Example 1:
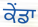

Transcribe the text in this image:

ਕੇਂਡਾ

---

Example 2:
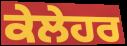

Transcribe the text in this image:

ਕੇਲੇਹਰ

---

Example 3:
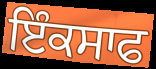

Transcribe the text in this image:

ਇੰਕਸਾਫ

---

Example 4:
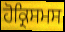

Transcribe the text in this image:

ਹੋਕ੍ਰਿਸਮਸ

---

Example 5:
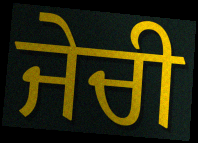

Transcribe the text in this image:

ਜੇਚੀ